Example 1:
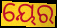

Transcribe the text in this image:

ୟେର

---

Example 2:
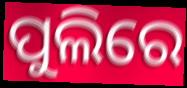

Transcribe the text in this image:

ପୁଲିରେ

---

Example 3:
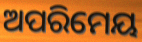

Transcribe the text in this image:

ଅପରିମେୟ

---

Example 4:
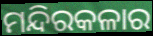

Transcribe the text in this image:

ମନ୍ଦିରକଳାର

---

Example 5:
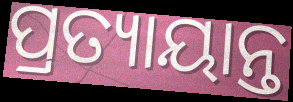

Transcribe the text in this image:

ପ୍ରତ୍ୟାୟାନ୍ତ